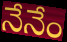
నేనేం